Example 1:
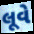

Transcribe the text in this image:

લૂવે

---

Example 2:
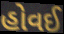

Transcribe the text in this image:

હોવઈ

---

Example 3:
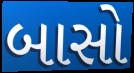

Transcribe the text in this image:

બાસો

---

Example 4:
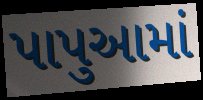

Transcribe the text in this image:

પાપુઆમાં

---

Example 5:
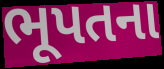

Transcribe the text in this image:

ભૂપતના